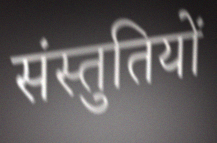
संस्तुतियों